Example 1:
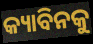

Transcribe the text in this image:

କ୍ୟାବିନକୁ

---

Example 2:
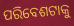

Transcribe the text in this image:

ପରିବେଶଟାକୁ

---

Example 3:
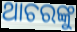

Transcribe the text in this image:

ଥାଚରଙ୍କୁ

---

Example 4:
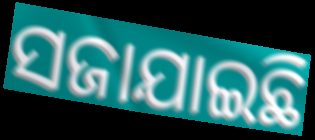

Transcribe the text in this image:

ସଜାଯାଇଛି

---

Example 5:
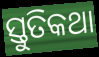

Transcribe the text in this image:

ସ୍ତୁତିକଥା